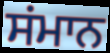
ਸਂਮਾਨ